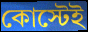
কোস্টেই